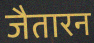
जैतारन